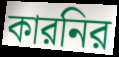
কারনির